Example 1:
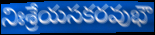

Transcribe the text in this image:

నిఃశ్రేయసకరవుభౌ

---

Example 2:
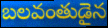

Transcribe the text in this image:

బలవంతుడైన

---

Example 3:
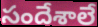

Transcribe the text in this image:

సందేశాలే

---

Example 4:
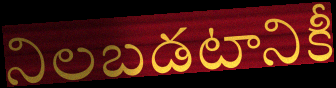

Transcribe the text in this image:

నిలబడటానికీ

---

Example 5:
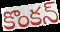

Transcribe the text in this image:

కొంకన్